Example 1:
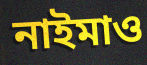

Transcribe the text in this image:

নাইমাও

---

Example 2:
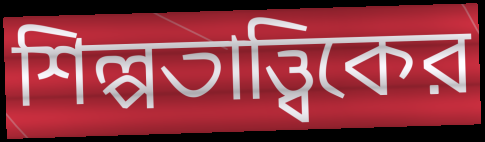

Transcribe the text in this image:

শিল্পতাত্ত্বিকের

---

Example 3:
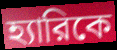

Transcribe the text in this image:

হ্যারিকে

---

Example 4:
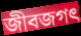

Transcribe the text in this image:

জীবজগৎ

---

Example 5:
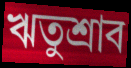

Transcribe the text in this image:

ঋতুশ্রাব